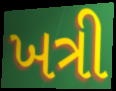
ખત્રી